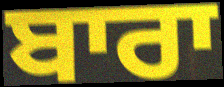
ਬਾਰਾ